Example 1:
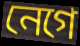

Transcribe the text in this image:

নেগে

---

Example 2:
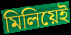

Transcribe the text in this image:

মিলিয়েই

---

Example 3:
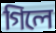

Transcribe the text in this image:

গিলে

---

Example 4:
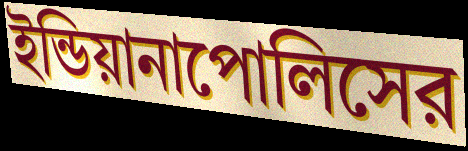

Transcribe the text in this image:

ইন্ডিয়ানাপোলিসের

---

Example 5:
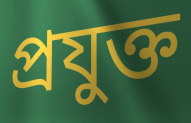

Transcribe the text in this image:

প্রযুক্ত